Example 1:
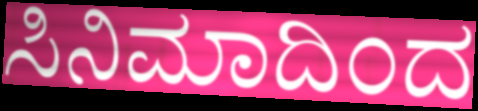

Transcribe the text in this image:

ಸಿನಿಮಾದಿಂದ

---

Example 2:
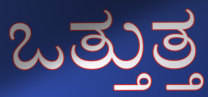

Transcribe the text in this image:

ಒತ್ತುತ್ತ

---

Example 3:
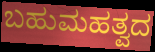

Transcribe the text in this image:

ಬಹುಮಹತ್ವದ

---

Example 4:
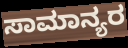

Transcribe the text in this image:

ಸಾಮಾನ್ಯರ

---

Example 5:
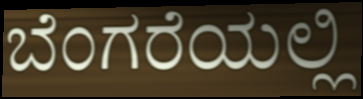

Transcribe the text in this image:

ಬೆಂಗರೆಯಲ್ಲಿ